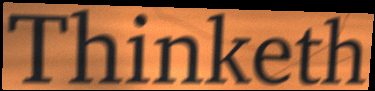
Thinketh